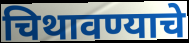
चिथावण्याचे